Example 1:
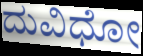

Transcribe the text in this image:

ದುವಿಧೋ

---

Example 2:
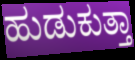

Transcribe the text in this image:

ಹುಡುಕುತ್ತಾ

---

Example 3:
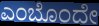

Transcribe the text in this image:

ಎಂಬೊಂದೇ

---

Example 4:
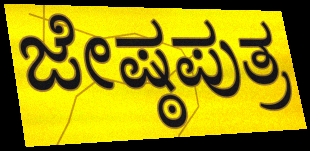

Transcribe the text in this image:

ಜೇಷ್ಠಪುತ್ರ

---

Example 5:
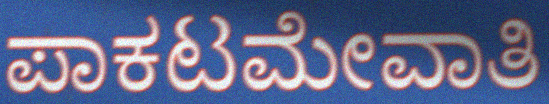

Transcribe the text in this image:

ಪಾಕಟಮೇವಾತಿ